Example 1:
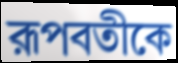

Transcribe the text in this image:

রূপবতীকে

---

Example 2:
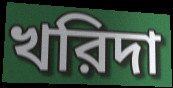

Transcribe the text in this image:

খরিদা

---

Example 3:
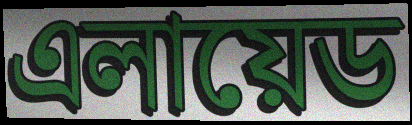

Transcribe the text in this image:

এলায়েড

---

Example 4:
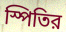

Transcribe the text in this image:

স্পিতির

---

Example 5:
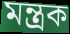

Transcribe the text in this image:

মন্ত্রক